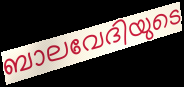
ബാലവേദിയുടെ